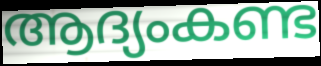
ആദ്യംകണ്ട